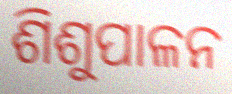
ଶିଶୁପାଳନ